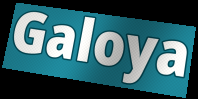
Galoya